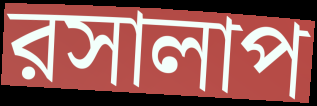
রসালাপ